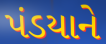
પંડયાને